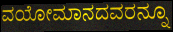
ವಯೋಮಾನದವರನ್ನೂ